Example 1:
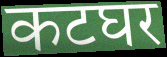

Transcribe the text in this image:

कटघर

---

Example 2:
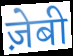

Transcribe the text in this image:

ज़ेबी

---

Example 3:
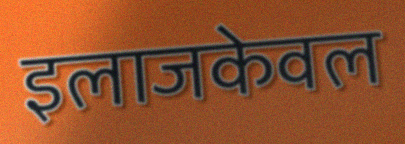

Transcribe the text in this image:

इलाजकेवल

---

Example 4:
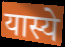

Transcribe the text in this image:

यास्ये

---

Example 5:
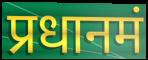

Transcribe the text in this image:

प्रधानमं